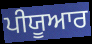
ਪੀਯੂਆਰ